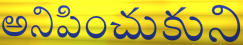
అనిపించుకుని